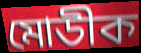
মোডীক